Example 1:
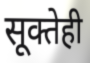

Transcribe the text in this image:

सूक्तेही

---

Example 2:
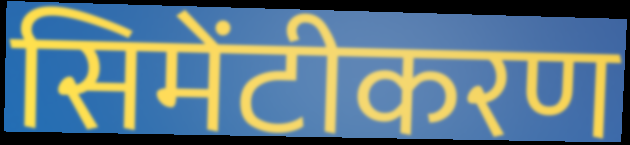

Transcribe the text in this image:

सिमेंटीकरण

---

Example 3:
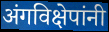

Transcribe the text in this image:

अंगविक्षेपांनी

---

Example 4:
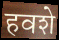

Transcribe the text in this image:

हवशे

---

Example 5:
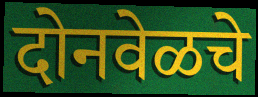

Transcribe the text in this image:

दोनवेळचे